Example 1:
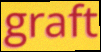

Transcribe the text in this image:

graft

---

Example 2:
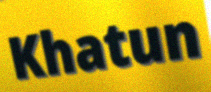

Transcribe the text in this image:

Khatun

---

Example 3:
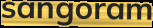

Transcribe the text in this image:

sangoram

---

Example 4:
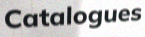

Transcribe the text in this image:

Catalogues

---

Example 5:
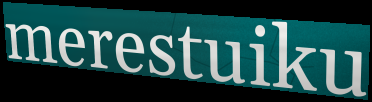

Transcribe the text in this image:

merestuiku